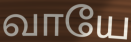
வாயே